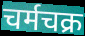
चर्मचक्र